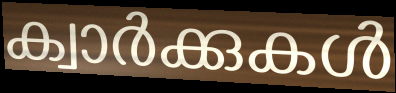
ക്വാർക്കുകൾ